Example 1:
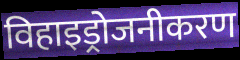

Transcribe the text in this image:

विहाइड्रोजनीकरण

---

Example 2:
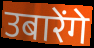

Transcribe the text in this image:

उबारेंगे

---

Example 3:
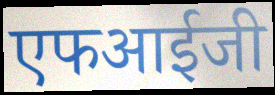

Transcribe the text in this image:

एफआईजी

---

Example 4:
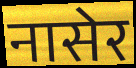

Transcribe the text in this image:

नासेर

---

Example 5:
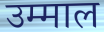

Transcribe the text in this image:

उम्माल